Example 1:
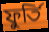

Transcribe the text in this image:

ফুর্তি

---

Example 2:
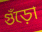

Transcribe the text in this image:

গুঁড়ো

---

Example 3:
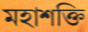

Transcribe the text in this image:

মহাশক্তি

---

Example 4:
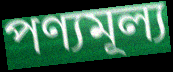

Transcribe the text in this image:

পণ্যমূল্য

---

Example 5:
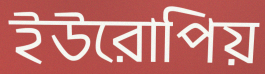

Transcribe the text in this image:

ইউরোপিয়